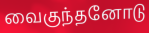
வைகுந்தனோடு